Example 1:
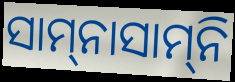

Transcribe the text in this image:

ସାମ୍‍ନାସାମ୍‍ନି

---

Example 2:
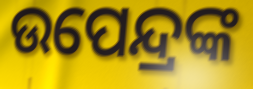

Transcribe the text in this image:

ଉପେନ୍ଦ୍ରଙ୍କ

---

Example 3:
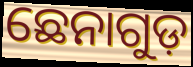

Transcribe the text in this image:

ଛେନାଗୁଡ଼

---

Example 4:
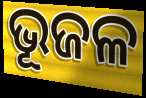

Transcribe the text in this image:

ଭୂଜଳ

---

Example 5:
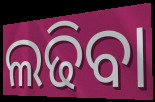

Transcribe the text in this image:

ଲଢିବା